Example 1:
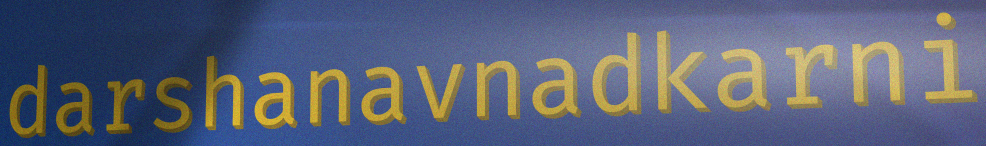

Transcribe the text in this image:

darshanavnadkarni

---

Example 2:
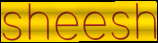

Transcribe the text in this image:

sheesh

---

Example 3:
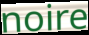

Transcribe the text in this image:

noire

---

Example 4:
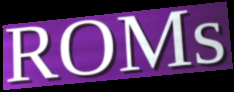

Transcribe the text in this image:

ROMs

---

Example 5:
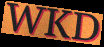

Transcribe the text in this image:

WKD